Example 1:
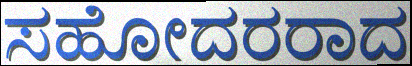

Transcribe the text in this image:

ಸಹೋದರರಾದ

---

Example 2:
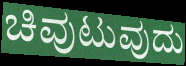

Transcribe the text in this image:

ಚಿವುಟುವುದು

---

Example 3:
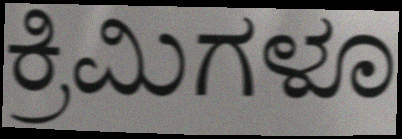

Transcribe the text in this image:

ಕ್ರಿಮಿಗಳೂ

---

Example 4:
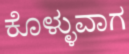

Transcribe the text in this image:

ಕೊಳ್ಳುವಾಗ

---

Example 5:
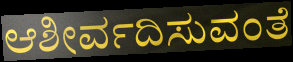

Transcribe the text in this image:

ಆಶೀರ್ವದಿಸುವಂತೆ